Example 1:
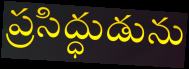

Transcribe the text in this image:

ప్రసిద్ధుడును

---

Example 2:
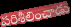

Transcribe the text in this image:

పరిశీలించాడు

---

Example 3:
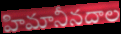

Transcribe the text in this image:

హిమానీనదాల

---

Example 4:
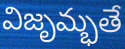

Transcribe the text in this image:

విజృమ్భతే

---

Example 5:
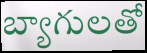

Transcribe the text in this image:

బ్యాగులతో